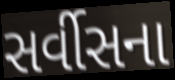
સર્વીસના